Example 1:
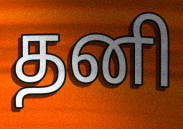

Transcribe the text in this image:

தனி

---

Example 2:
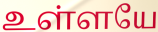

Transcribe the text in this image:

உள்ளயே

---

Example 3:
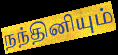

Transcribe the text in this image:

நந்தினியும்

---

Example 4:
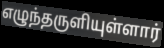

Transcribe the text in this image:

எழுந்தருளியுள்ளார்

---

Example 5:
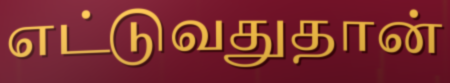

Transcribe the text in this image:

எட்டுவதுதான்